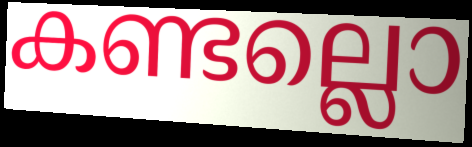
കണ്ടല്ലൊ